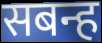
सबन्ह